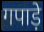
गपाड़े